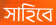
সাহিবে